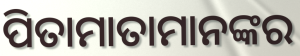
ପିତାମାତାମାନଙ୍କର